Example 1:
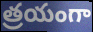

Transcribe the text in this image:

త్రయంగా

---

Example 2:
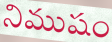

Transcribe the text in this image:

నిముషం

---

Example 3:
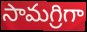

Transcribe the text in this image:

సామగ్రిగా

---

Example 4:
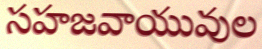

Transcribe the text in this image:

సహజవాయువుల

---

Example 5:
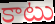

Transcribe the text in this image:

కాటు